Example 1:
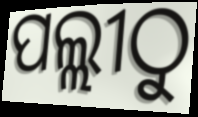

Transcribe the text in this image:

ପଲ୍ଲୀଠୁ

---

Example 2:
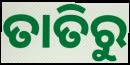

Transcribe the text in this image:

ତାତିରୁ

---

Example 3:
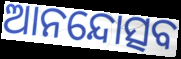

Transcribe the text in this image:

ଆନନ୍ଦୋତ୍ସବ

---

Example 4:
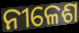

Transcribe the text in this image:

ନୀଳେଶ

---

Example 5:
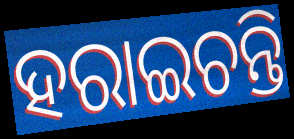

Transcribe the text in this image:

ହରାଇଚନ୍ତି